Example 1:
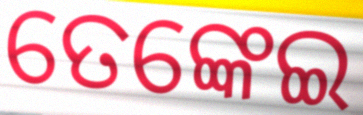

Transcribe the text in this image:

ତେଙ୍କେଇ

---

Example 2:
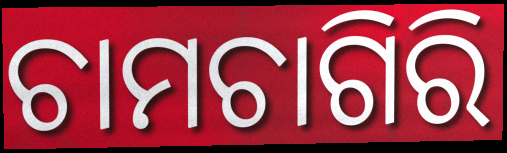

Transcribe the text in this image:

ଚାମଚାଗିରି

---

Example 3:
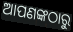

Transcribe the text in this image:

ଆପଣଙ୍କଠାରୁ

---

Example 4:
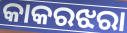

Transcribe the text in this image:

କାକରଝରା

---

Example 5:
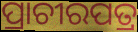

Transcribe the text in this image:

ପ୍ରାଚୀରପତ୍ର